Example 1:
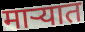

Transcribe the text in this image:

माऱ्यात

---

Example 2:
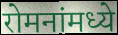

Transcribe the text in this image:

रोमनांमध्ये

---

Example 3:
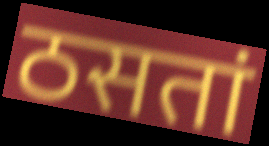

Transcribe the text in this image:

ठसतां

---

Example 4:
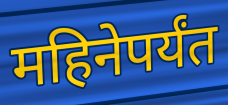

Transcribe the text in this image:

महिनेपर्यंत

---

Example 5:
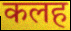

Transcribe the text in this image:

कलह